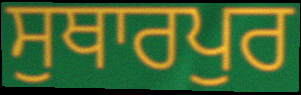
ਸੁਥਾਰਪੁਰ